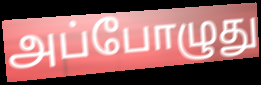
அப்போழுது